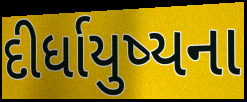
દીર્ધાયુષ્યના